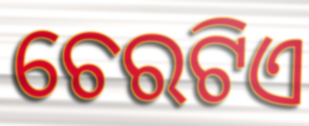
ଚେରଟିଏ